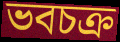
ভবচক্র